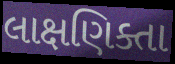
લાક્ષણિક્તા